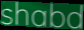
shabd